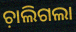
ଚ଼ାଲିଗଲା